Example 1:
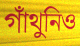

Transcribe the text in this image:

গাঁথুনিও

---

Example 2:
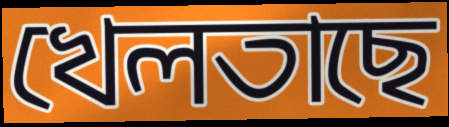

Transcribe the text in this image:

খেলতাছে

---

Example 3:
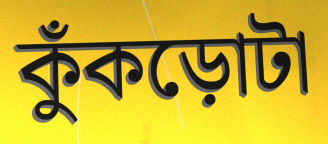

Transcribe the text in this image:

কুঁকড়োটা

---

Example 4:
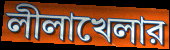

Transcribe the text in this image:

লীলাখেলার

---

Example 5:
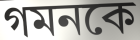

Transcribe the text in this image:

গমনকে